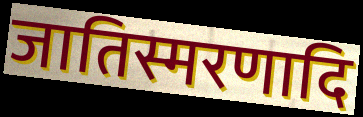
जातिस्मरणादि